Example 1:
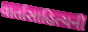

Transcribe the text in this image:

વાર્તાસાહિત્યની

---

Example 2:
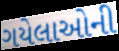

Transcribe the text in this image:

ગયેલાઓની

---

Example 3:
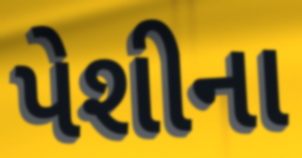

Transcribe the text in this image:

પેશીના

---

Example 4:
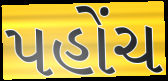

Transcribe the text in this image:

પહોંચ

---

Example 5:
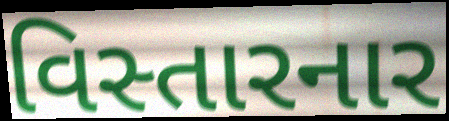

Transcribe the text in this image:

વિસ્તારનાર